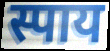
स्पाय